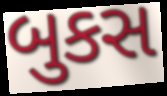
બુકસ